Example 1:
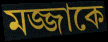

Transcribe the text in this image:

মজ্জাকে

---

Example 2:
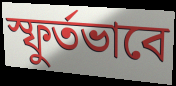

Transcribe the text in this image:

স্ফুর্তভাবে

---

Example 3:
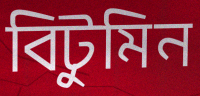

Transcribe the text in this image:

বিটুমিন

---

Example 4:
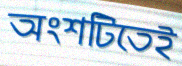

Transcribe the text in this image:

অংশটিতেই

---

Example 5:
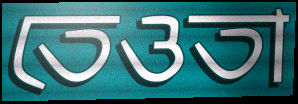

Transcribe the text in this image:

তেওতা